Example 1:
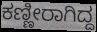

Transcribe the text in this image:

ಕಣ್ಣೀರಾಗಿದ್ದ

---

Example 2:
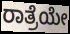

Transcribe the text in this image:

ರಾತ್ರೆಯೇ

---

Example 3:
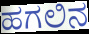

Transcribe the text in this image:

ಹಗಲಿನ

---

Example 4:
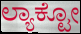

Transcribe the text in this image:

ಲ್ಯಾಕ್ಟೋ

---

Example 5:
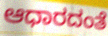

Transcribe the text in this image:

ಆಧಾರದಂತೆ